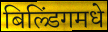
बिल्डिंगमधे